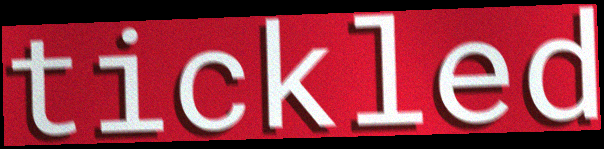
tickled